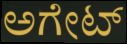
ಅಗೇಟ್